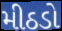
મીઠડો